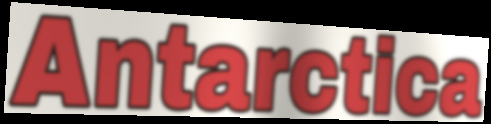
Antarctica